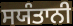
ਸਯੰਤਾਨੀ